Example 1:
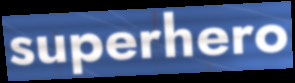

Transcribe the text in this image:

superhero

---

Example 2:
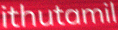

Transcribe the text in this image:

ithutamil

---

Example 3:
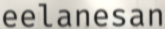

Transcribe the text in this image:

eelanesan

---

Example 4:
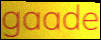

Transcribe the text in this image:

gaade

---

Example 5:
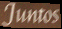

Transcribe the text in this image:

Juntos